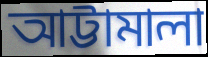
আট্টামালা